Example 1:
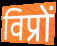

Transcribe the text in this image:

विप्रों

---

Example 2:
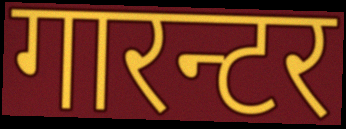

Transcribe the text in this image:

गारन्टर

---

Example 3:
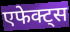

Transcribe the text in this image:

एफेक्ट्स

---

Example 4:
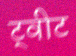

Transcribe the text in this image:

ट्‌वीट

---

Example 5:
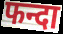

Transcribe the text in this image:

फन्दा